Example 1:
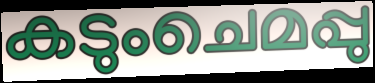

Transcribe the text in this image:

കടുംചെമപ്പു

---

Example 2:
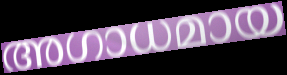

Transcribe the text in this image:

അഗാധമായ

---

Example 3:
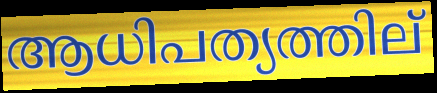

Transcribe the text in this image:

ആധിപത്യത്തില്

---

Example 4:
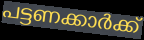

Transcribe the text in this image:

പട്ടണക്കാർക്ക്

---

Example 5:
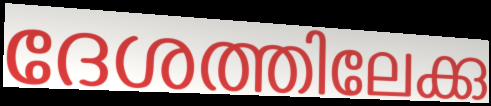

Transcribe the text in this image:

ദേശത്തിലേക്കു